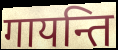
गायन्ति